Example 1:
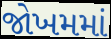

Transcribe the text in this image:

જોખમમાં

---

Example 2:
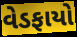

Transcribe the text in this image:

વેડફાયો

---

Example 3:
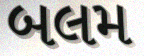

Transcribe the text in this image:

બલમ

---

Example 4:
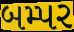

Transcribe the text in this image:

બમ્પર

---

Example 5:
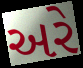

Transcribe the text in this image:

અરે